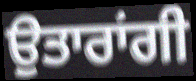
ਉਤਾਰਾਂਗੀ